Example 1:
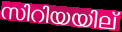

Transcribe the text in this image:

സിറിയയില്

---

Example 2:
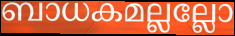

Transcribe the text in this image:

ബാധകമല്ലല്ലോ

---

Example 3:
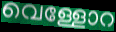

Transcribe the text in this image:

വെള്ളോറ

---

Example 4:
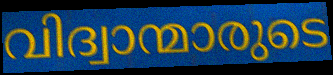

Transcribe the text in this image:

വിദ്വാന്മാരുടെ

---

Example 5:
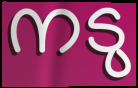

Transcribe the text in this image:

നടു